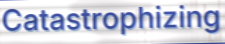
Catastrophizing